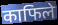
काफिले